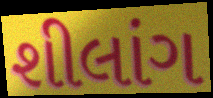
શીલાંગ